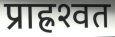
प्राह्रश्वत